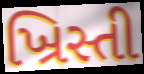
ખ્રિસ્તી